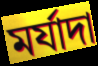
মৰ্যাদা